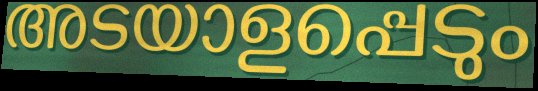
അടയാളപ്പെടും